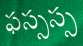
ఫస్సస్స